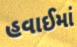
હવાઈમાં